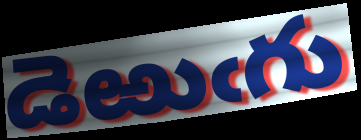
డెఱుఁగు